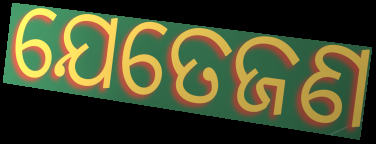
ଯେତେଜଣ